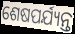
ଶେଷପର୍ଯ୍ୟନ୍ତ